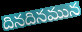
దినదినమున